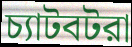
চ্যাটবটরা